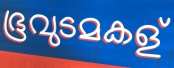
ഭൂവുടമകള്